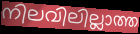
നിലവിലില്ലാത്ത